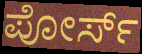
ಪೋರ್ಸ್